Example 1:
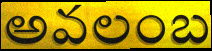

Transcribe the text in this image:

అవలంబ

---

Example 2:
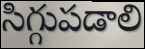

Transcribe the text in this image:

సిగ్గుపడాలి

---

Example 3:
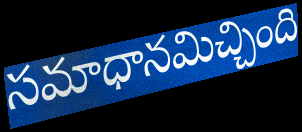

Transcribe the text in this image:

సమాధానమిచ్చింది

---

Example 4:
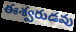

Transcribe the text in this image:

ఈశ్వరుడవు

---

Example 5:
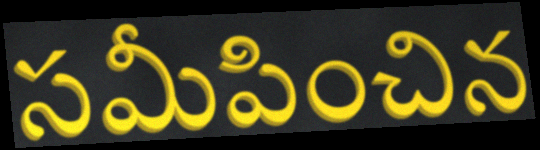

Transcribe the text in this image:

సమీపించిన